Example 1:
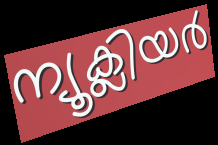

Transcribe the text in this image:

ന്യൂക്ലിയർ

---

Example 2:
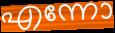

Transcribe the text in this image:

എന്നോ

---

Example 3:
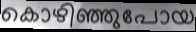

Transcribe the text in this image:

കൊഴിഞ്ഞുപോയ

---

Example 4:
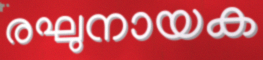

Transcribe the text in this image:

രഘുനായക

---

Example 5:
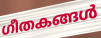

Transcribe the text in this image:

ഗീതകങ്ങൾ